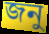
জনু